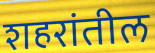
शहरांतील